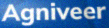
Agniveer